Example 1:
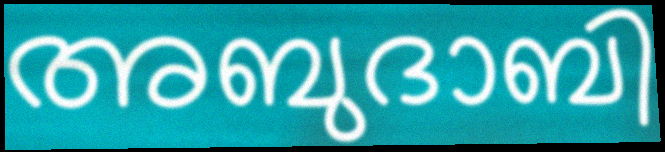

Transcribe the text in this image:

അബുദാബി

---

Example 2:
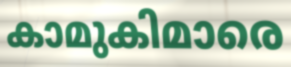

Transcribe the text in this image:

കാമുകിമാരെ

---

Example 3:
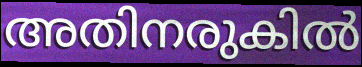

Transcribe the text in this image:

അതിനരുകിൽ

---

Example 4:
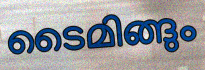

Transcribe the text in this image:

ടൈമിങ്ങും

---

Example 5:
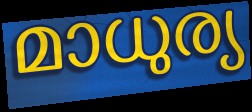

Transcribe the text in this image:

മാധുര്യ